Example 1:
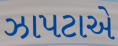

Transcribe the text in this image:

ઝાપટાએ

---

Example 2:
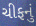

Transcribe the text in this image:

ચીફનું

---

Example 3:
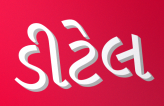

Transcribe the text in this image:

ડીટેલ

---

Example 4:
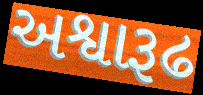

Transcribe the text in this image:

અશ્વારૂઢ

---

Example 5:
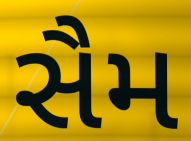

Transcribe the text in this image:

સૈમ